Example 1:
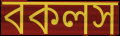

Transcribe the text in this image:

বকলস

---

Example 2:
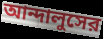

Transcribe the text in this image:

আন্দালুসের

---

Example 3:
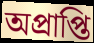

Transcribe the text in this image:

অপ্রাপ্তি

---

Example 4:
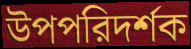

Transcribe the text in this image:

উপপরিদর্শক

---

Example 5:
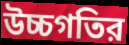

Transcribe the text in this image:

উচ্চগতির